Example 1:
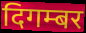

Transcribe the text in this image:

दिगम्बर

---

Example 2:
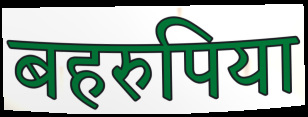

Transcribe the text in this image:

बहरुपिया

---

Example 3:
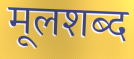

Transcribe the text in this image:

मूलशब्द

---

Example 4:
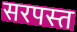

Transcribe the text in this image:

सरपस्त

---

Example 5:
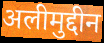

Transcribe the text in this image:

अलीमुद्दीन